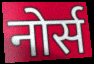
नोर्स